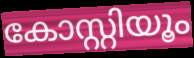
കോസ്റ്റിയൂം